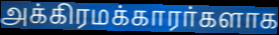
அக்கிரமக்காரர்களாக